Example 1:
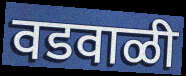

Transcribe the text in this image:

वडवाळी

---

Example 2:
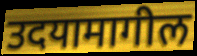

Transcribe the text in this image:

उदयामागील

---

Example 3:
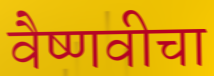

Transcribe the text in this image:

वैष्णवीचा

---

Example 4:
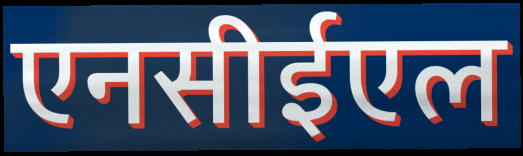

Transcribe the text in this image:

एनसीईएल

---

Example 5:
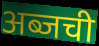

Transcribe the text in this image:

अब्जची